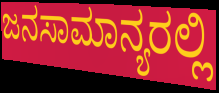
ಜನಸಾಮಾನ್ಯರಲ್ಲಿ